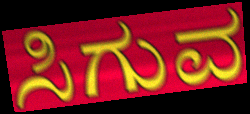
ಸಿಗುವ